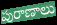
పురాణాలు